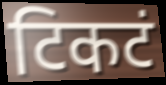
टिकटं